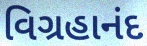
વિગ્રહાનંદ